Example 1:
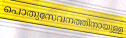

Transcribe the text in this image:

പൊതുസേവനത്തിനായുള്ള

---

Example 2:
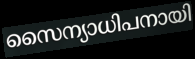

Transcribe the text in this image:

സൈന്യാധിപനായി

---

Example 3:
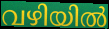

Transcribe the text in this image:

വഴിയിൽ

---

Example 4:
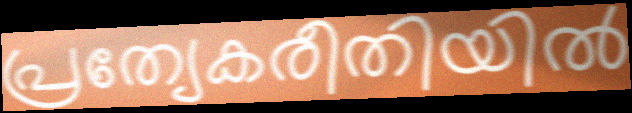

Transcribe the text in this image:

പ്രത്യേകരീതിയിൽ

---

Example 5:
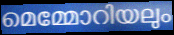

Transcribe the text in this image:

മെമ്മോറിയലും